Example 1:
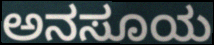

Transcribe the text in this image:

ಅನಸೂಯ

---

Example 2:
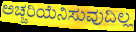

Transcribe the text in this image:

ಅಚ್ಚರಿಯೆನಿಸುವುದಿಲ್ಲ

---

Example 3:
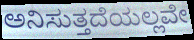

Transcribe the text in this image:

ಅನಿಸುತ್ತದೆಯಲ್ಲವೇ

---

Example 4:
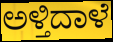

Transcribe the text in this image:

ಅಳ್ತಿದಾಳೆ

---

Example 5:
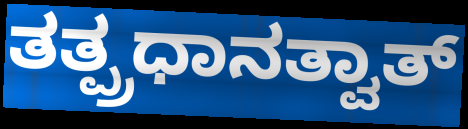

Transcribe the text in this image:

ತತ್ಪ್ರಧಾನತ್ವಾತ್